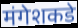
मंगेशकडे